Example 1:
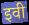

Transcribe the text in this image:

इवी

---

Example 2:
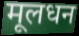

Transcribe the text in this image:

मूलधन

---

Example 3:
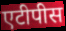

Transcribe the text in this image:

एटीपीस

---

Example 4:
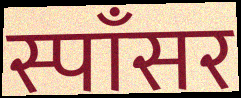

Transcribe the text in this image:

स्पॉंसर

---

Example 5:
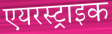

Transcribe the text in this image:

एयरस्ट्राइक